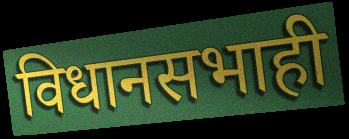
विधानसभाही